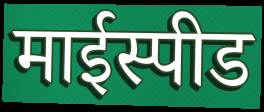
माईस्पीड